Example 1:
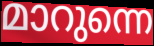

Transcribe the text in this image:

മാറുന്നെ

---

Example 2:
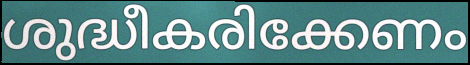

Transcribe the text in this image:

ശുദ്ധീകരിക്കേണം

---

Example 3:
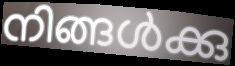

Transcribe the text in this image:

നിങ്ങൾക്കു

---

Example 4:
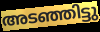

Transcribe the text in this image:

അടഞ്ഞിട്ടു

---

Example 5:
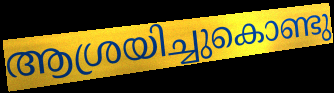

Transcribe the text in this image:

ആശ്രയിച്ചുകൊണ്ടു